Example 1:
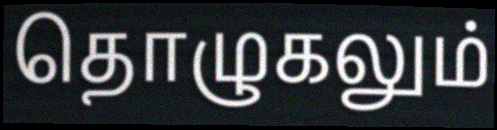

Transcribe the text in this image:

தொழுகலும்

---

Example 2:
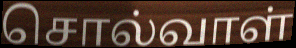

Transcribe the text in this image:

சொல்வாள்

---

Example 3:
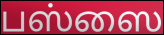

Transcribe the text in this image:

பஸ்ஸை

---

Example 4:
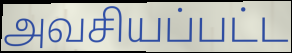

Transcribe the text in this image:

அவசியப்பட்ட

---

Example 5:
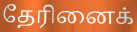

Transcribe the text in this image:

தேரினைக்